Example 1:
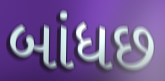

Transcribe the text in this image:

બાંધછ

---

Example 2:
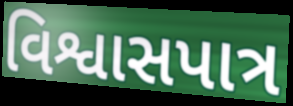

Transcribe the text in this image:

વિશ્વાસપાત્ર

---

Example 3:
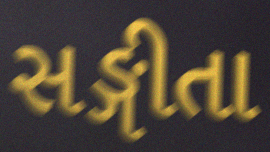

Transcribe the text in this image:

સઙ્ગીતા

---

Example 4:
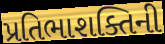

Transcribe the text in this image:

પ્રતિભાશક્તિની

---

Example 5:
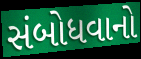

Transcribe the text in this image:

સંબોધવાનો